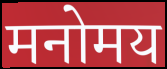
मनोमय